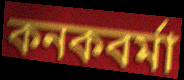
কনকবর্মা